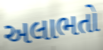
અલાભતો